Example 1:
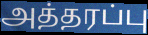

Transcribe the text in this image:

அத்தரப்பு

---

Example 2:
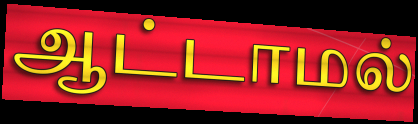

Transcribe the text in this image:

ஆட்டாமல்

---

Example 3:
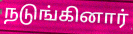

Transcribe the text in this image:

நடுங்கினார்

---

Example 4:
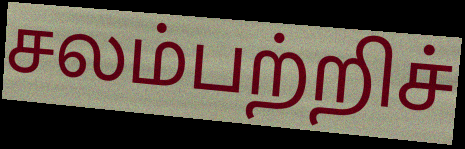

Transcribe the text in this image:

சலம்பற்றிச்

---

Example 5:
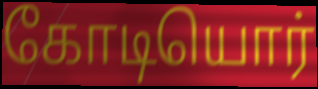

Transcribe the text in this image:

கோடியொர்